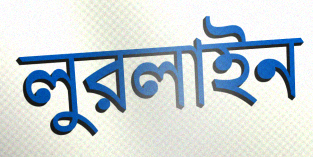
লুরলাইন